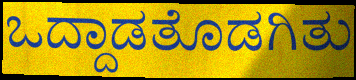
ಒದ್ದಾಡತೊಡಗಿತು